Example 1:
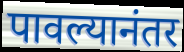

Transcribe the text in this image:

पावल्यानंतर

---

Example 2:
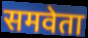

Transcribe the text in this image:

समवेता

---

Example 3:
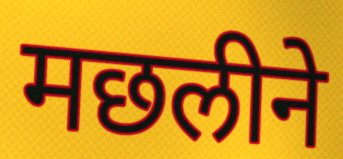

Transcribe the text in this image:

मछलीने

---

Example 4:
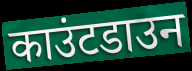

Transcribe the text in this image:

काउंटडाउन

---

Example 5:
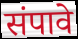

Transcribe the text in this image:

संपावे